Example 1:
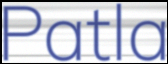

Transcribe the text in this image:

Patla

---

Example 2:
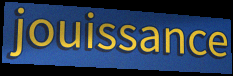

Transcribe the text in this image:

jouissance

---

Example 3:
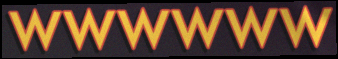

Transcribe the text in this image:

wwwwww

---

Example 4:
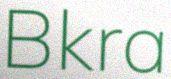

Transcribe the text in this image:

Bkra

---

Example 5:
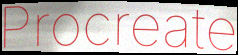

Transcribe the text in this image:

Procreate